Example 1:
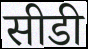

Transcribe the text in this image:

सीडी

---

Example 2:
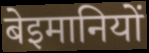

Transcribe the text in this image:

बेइमानियों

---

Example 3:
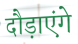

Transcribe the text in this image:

दौड़ाएंगे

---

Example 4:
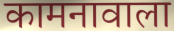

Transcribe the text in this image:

कामनावाला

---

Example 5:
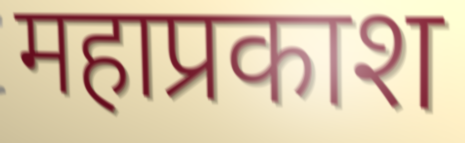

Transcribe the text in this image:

महाप्रकाश